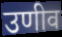
उणीव